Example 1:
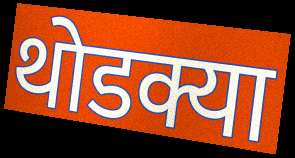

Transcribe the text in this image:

थोडक्या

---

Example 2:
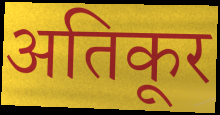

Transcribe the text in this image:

अतिकूर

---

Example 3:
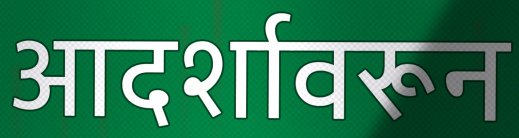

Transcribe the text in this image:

आदर्शावरून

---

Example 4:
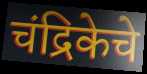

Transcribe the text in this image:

चंद्रिकेचे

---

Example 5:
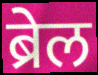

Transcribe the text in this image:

ब्रेल